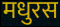
मधुरस